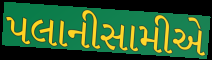
પલાનીસામીએ